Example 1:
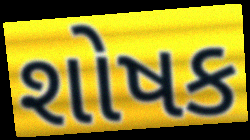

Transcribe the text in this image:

શોષક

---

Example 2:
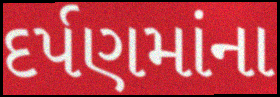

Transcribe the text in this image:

દર્પણમાંના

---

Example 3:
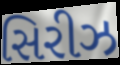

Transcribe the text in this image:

સિરીઝ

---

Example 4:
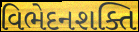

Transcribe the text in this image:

વિભેદનશક્તિ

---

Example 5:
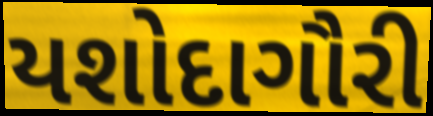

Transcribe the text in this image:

યશોદાગૌરી